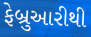
ફેબ્રુઆરીથી